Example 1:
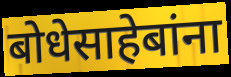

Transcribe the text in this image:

बोधेसाहेबांना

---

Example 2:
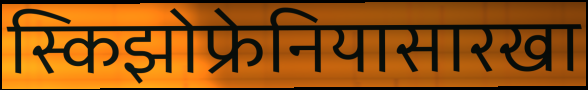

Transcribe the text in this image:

स्किझोफ्रेनियासारखा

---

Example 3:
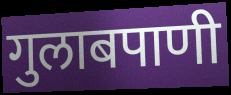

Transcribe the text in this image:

गुलाबपाणी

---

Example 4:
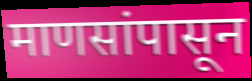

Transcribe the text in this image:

माणसांपासून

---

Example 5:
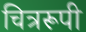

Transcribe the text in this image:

चित्ररूपी